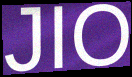
JIO